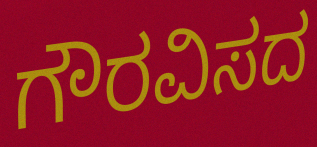
ಗೌರವಿಸದ